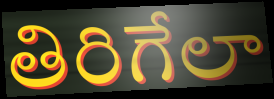
తిరిగేలా